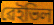
ৱেইভিল